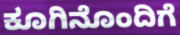
ಕೂಗಿನೊಂದಿಗೆ